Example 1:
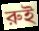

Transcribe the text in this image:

রুই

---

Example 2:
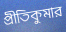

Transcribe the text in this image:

প্রীতিকুমার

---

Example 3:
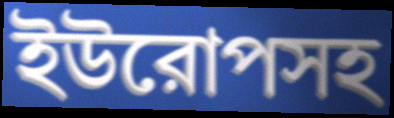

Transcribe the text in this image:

ইউরোপসহ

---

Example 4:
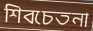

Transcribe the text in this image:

শিবচেতনা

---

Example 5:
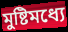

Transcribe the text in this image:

মুষ্টিমধ্যে